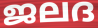
ജലദ